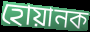
হোয়ানক